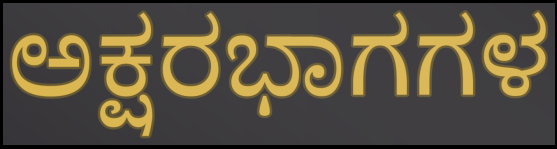
ಅಕ್ಷರಭಾಗಗಳ